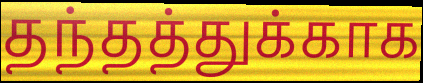
தந்தத்துக்காக